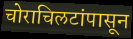
चोराचिलटांपासून